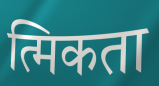
त्मिकता